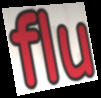
flu